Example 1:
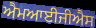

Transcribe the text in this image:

ਐਮਆਈਜੀਐਸ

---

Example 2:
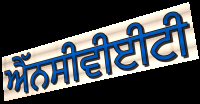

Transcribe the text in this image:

ਐੱਨਸੀਵੀਈਟੀ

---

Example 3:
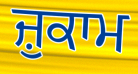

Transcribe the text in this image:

ਜ਼ੁਕਾਮ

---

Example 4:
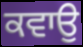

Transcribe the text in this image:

ਕਵਾਉ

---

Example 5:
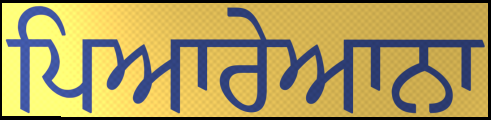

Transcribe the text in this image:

ਪਿਆਰੇਆਨਾ